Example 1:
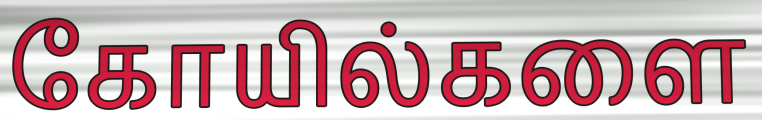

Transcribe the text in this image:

கோயில்களை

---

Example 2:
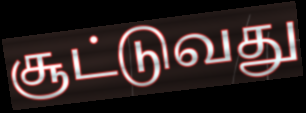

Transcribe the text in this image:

சூட்டுவது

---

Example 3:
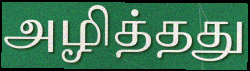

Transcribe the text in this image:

அழித்தது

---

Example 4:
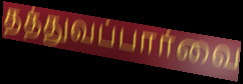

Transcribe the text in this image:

தத்துவப்பார்வை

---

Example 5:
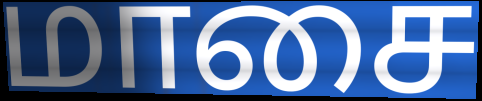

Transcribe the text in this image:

மாசை